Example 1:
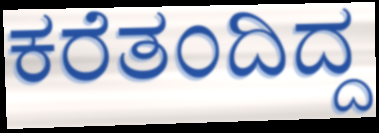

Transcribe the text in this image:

ಕರೆತಂದಿದ್ದ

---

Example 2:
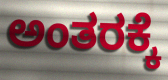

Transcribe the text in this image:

ಅಂತರಕ್ಕೆ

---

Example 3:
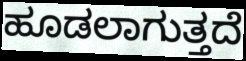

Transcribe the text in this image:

ಹೂಡಲಾಗುತ್ತದೆ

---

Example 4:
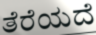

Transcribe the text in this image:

ತೆರೆಯದೆ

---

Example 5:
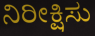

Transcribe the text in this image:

ನಿರೀಕ್ಷಿಸು